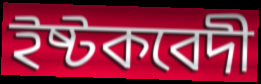
ইষ্টকবেদী